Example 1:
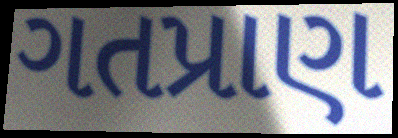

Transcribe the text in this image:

ગતપ્રાણ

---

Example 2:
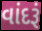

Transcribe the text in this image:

વાંદરૂં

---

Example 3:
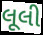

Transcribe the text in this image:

લૂલી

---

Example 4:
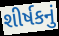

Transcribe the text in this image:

શીર્ષકનું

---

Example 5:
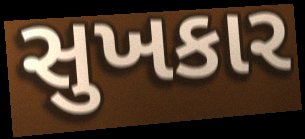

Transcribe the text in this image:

સુખકાર